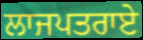
ਲਾਜਪਤਰਾਏ